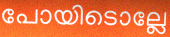
പോയിടൊല്ലേ